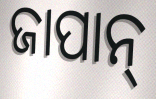
ଜାପାନ୍